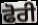
ਫੋਰੀ